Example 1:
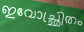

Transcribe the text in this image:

ഇവോച്ഛ്രിതം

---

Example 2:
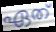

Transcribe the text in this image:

ഏത്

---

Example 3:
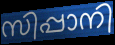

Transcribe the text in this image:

സിപ്പാനി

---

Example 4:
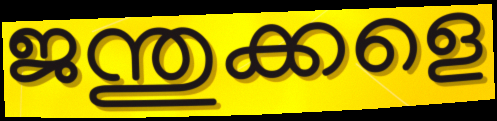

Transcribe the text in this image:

ജന്തുക്കളെ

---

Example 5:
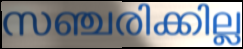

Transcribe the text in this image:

സഞ്ചരിക്കില്ല